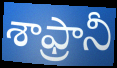
శాఫ్రానీ